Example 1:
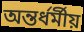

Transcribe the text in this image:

অন্তর্ধর্মীয়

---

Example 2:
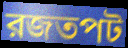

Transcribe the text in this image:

রজতপট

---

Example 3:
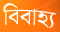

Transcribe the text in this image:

বিবাহ্য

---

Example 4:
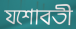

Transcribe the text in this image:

যশোবতী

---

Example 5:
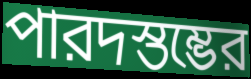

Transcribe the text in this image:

পারদস্তম্ভের